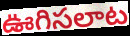
ఊగిసలాట